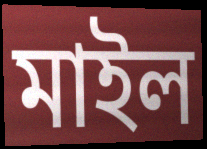
মাইল